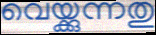
വെയ്ക്കുന്നതു